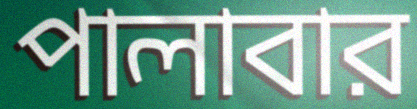
পালাবার